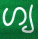
ഗ്യ